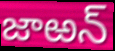
జాఱన్